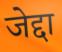
जेद्दा